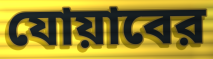
যোয়াবের